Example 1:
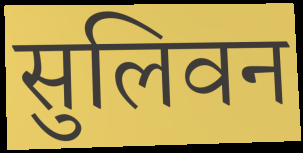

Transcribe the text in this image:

सुलिवन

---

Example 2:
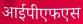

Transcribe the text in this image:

आईपीएफएस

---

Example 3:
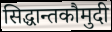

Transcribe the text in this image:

सिद्धान्तकौमुदी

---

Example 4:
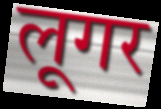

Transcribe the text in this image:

लूगर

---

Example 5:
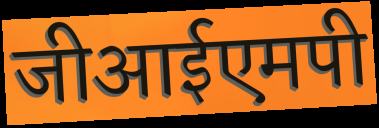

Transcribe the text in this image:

जीआईएमपी